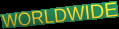
WORLDWIDE